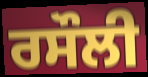
ਰਸੌਲੀ